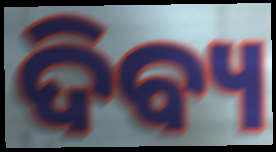
ଦିବ୍ୟ